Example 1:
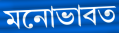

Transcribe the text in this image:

মনোভাবত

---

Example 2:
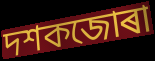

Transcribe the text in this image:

দশকজোৰা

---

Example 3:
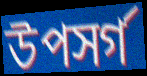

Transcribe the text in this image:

উপসৰ্গ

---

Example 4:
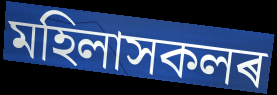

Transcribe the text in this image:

মহিলাসকলৰ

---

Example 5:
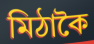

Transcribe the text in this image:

মিঠাকৈ